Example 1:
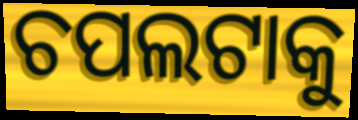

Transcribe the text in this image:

ଚପଲଟାକୁ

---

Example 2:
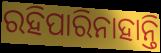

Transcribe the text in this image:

ରହିପାରିନାହାନ୍ତି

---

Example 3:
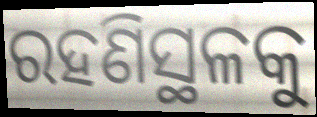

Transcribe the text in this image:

ରହଣିସ୍ଥଳକୁ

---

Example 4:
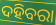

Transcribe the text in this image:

ଦହିବରା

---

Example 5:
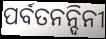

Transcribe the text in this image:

ପର୍ବତନନ୍ଦିନୀ